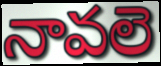
నావలె